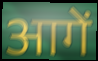
आगें